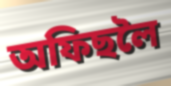
অফিছলৈ